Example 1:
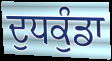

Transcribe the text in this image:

ਦੁਧਕੁੰਡਾ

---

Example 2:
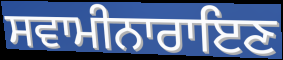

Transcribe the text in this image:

ਸਵਾਮੀਨਾਰਾਇਣ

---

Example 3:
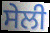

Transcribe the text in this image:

ਸੇਲੀ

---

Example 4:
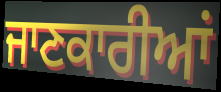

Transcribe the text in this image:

ਜਾਣਕਾਰੀਆਂ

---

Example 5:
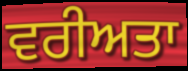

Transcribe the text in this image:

ਵਰੀਅਤਾ